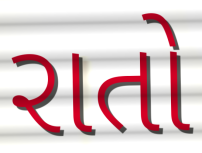
રાતો